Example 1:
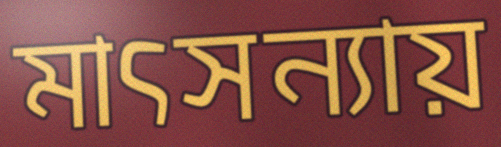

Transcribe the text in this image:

মাৎসন্যায়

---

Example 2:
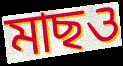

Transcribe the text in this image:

মাছও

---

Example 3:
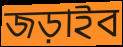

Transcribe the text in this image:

জড়াইব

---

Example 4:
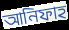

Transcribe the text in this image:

আনিফাহ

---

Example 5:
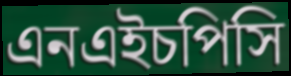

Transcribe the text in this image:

এনএইচপিসি